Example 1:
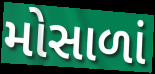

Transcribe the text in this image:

મોસાળાં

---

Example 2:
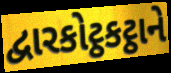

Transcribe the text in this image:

દ્વારકોટ્ઠકટ્ઠાને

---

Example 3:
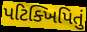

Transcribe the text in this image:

પટિક્ખિપિતું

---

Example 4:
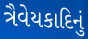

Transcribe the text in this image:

ત્રૈવેયકાદિનું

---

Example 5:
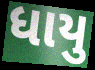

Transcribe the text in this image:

ધાયુ